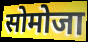
सोमोजा